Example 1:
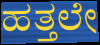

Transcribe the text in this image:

ಹತ್ತಲೇ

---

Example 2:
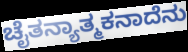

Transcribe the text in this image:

ಚೈತನ್ಯಾತ್ಮಕನಾದೆನು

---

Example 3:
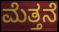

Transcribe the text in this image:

ಮೆತ್ತನೆ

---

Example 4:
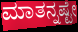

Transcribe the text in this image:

ಮಾತನ್ನಷ್ಟೇ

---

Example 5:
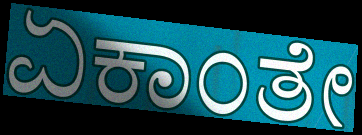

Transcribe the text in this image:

ಏಕಾಂತೇ